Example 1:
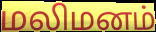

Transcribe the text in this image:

மலிமனம்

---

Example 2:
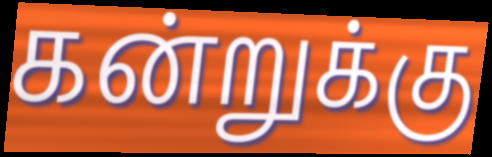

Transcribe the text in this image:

கன்றுக்கு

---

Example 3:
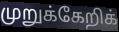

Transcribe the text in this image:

முறுக்கேறிக்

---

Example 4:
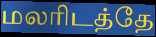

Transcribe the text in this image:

மலரிடத்தே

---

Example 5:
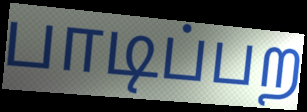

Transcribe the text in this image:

பாடிப்பற